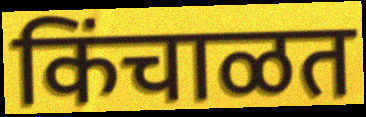
किंचाळत